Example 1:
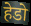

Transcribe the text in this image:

हेडो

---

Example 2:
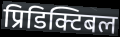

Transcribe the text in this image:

प्रिडिक्टिबल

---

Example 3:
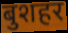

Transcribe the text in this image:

बुशहर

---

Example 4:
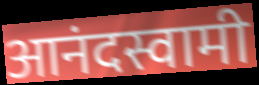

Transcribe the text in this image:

आनंदस्वामी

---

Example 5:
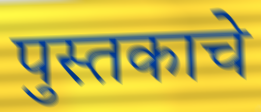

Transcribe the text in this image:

पुस्तकाचे